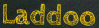
Laddoo